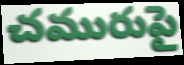
చమురుపై